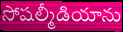
సోషల్మీడియాను